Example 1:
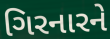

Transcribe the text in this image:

ગિરનારને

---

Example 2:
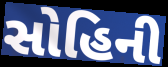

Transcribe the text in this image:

સોહિની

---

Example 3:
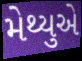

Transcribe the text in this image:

મેથ્યુએ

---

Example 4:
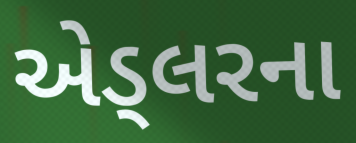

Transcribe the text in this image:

એડ્લરના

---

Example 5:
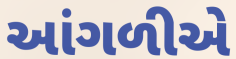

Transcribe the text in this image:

આંગળીએ